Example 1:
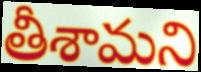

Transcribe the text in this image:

తీశామని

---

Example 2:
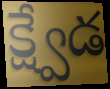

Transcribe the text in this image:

క్ష్వేడ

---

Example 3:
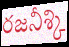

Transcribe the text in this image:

రజనీశ్కి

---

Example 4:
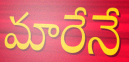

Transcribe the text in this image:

మారేనే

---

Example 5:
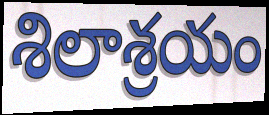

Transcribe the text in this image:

శిలాశ్రయం